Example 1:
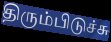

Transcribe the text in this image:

திரும்பிடுச்சு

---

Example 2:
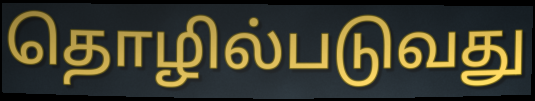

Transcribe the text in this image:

தொழில்படுவது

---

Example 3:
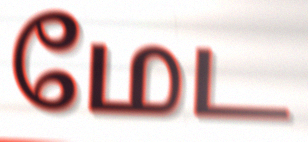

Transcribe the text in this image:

மேட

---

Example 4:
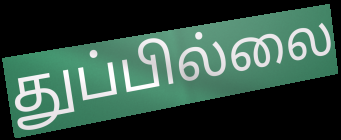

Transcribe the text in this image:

துப்பில்லை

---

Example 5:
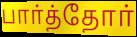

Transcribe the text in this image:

பார்த்தோர்